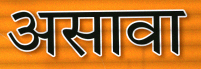
असावा